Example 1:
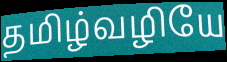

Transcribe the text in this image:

தமிழ்வழியே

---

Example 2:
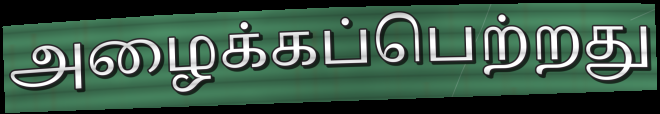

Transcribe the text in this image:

அழைக்கப்பெற்றது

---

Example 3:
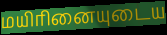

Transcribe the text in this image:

மயிரினையுடைய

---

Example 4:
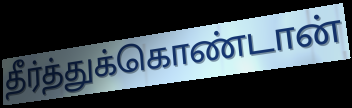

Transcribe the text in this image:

தீர்த்துக்கொண்டான்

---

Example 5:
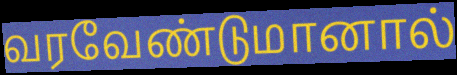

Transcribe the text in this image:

வரவேண்டுமானால்